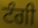
ਟੰਗੀ